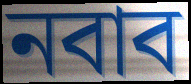
নবাব